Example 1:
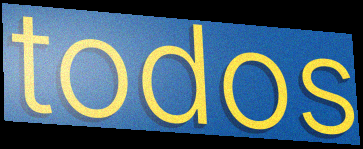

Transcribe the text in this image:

todos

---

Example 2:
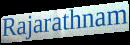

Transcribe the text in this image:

Rajarathnam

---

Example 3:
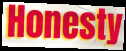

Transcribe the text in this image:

Honesty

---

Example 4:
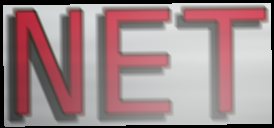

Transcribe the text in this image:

NET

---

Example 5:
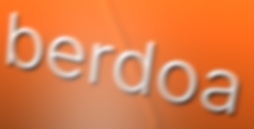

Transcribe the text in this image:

berdoa